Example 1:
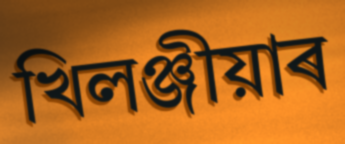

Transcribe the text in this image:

খিলঞ্জীয়াৰ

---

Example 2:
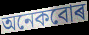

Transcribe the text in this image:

অনেকবোৰ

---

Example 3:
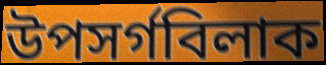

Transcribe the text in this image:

উপসৰ্গবিলাক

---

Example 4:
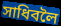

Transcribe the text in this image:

সাধিবলৈ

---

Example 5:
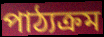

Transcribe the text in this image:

পাঠ্যক্ৰম